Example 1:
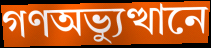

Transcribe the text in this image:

গণঅভ্যুত্থানে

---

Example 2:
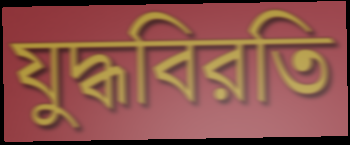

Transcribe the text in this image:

যুদ্ধবিরতি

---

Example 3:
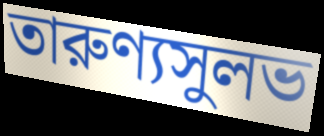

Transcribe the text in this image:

তারুণ্যসুলভ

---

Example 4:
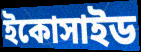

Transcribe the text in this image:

ইকোসাইড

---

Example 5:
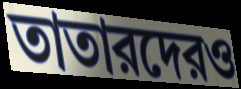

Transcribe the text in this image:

তাতারদেরও